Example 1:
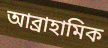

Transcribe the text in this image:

আব্ৰাহামিক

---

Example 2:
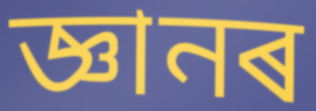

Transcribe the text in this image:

জ্ঞানৰ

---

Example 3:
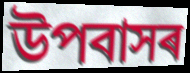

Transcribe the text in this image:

উপবাসৰ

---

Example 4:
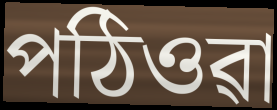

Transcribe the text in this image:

পঠিওৱা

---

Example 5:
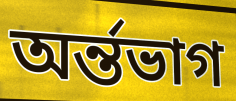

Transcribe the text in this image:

অৰ্ন্তভাগ